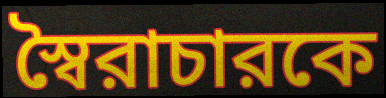
স্বৈরাচারকে